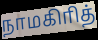
நாமகிரித்